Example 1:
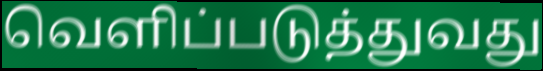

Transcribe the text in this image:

வெளிப்படுத்துவது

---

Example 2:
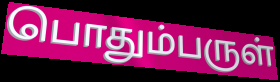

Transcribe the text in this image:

பொதும்பருள்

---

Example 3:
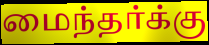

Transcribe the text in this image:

மைந்தர்க்கு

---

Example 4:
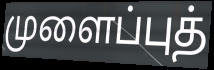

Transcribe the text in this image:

முளைப்புத்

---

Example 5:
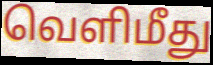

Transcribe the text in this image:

வெளிமீது